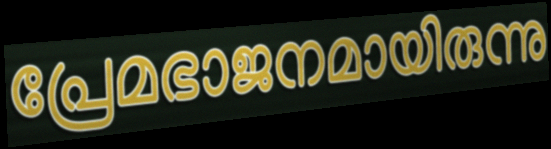
പ്രേമഭാജനമായിരുന്നു